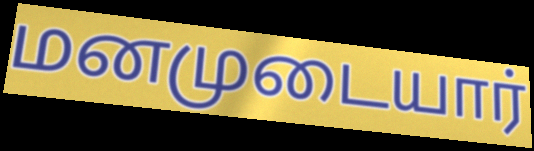
மனமுடையார்